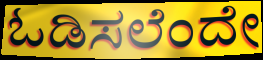
ಓಡಿಸಲೆಂದೇ